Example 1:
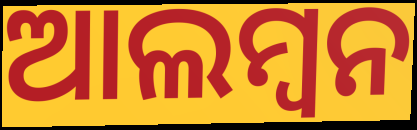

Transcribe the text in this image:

ଆଲମ୍ୱନ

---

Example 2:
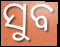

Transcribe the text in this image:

ସୁବ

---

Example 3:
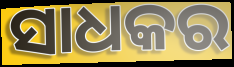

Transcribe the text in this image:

ସାଧକର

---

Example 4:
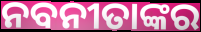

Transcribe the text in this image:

ନବନୀତାଙ୍କର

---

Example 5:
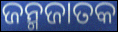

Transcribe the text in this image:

ଜନ୍ମଜାତକ